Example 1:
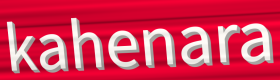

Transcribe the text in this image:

kahenara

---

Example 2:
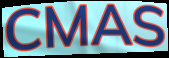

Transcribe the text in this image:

CMAS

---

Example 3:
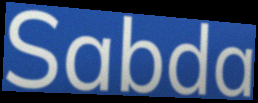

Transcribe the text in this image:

Sabda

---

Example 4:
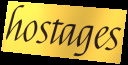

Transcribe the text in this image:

hostages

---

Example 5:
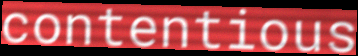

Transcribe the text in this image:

contentious